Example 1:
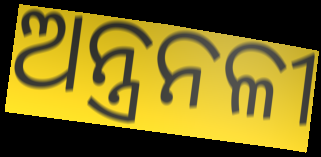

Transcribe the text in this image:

ଅନ୍ତ୍ରନଳୀ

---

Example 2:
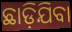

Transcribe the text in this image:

ଛାଡ଼ିଯିବା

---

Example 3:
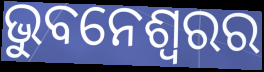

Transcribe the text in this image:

ଭୁବନେଶ୍ବରର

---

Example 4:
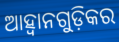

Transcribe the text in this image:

ଆହ୍ୱାନଗୁଡ଼ିକର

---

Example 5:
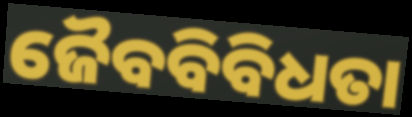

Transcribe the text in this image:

ଜୈବବିବିଧତା